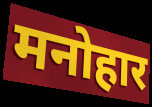
मनोहार